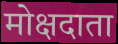
मोक्षदाता